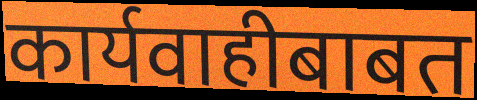
कार्यवाहीबाबत